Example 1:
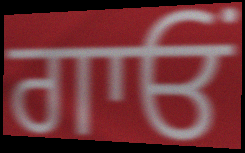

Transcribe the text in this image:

ਗਾਓਂ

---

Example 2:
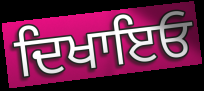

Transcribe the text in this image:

ਦਿਖਾਇਓ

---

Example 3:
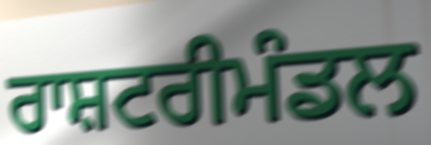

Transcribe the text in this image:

ਰਾਸ਼ਟਰੀਮੰਡਲ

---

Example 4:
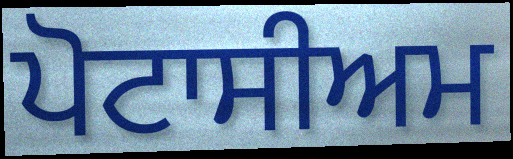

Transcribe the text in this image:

ਪੋਟਾਸੀਅਮ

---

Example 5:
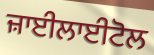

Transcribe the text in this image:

ਜ਼ਾਈਲਾਈਟੋਲ